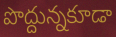
పొద్దున్నకూడా